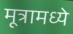
मूत्रामध्ये